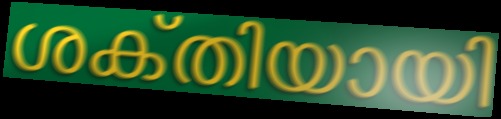
ശക്‌തിയായി